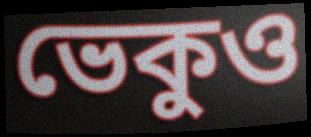
ভেকুও